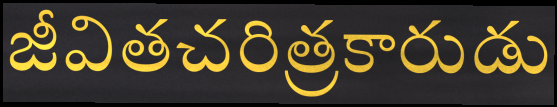
జీవితచరిత్రకారుడు